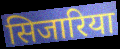
सिजारिया